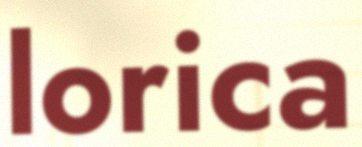
lorica